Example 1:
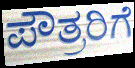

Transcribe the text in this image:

ಪೌತ್ರರಿಗೆ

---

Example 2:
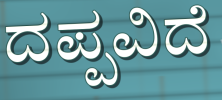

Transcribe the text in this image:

ದಪ್ಪವಿದೆ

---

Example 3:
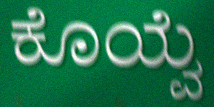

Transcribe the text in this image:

ಕೊಯ್ವೆ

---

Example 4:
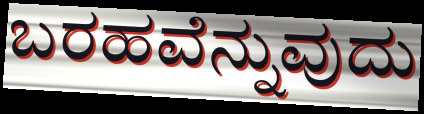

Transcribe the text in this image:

ಬರಹವೆನ್ನುವುದು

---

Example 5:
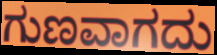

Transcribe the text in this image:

ಗುಣವಾಗದು